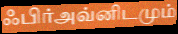
ஃபிர்அவ்னிடமும்